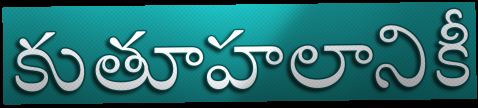
కుతూహలానికీ